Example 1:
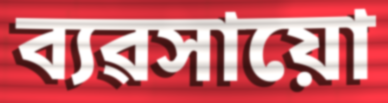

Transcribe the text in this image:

ব্যৱসায়ো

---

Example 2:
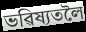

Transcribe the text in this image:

ভৱিষ্যতলৈ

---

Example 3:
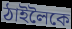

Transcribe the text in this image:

ঠাইলৈকে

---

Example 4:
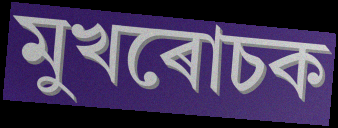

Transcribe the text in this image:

মুখৰোচক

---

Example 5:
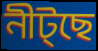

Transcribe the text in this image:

নীট্‌ছে